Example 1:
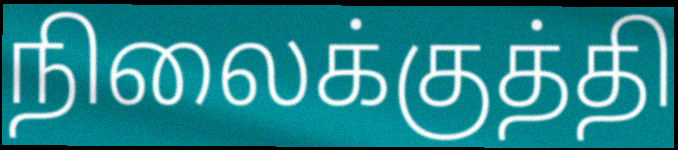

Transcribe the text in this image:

நிலைக்குத்தி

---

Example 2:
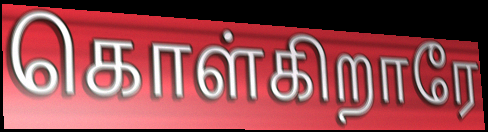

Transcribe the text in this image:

கொள்கிறாரே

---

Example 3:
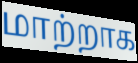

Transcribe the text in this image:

மாற்றாக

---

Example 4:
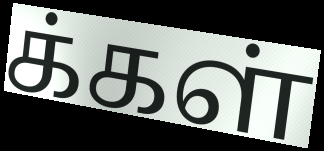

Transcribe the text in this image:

க்கள்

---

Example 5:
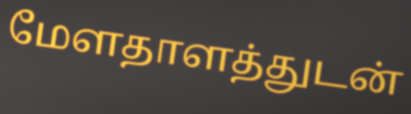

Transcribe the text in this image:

மேளதாளத்துடன்